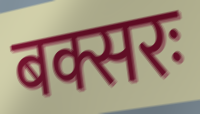
बक्सरः